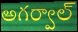
అగర్వాల్